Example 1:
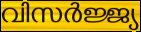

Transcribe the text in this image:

വിസർജ്ജ്യ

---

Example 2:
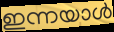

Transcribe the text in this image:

ഇന്നയാൾ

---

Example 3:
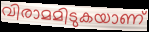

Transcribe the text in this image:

വിരാമമിടുകയാണ്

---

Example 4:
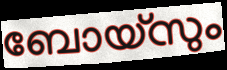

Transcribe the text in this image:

ബോയ്സും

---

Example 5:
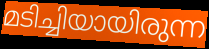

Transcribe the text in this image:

മടിച്ചിയായിരുന്ന